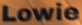
Lowie